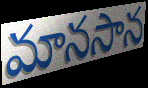
మానసాన